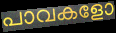
പാവകളോ